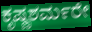
ಕೃಷ್ಣಶರ್ಮರೇ